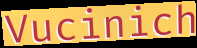
Vucinich